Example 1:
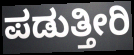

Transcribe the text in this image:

ಪಡುತ್ತೀರಿ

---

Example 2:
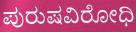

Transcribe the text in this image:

ಪುರುಷವಿರೋಧಿ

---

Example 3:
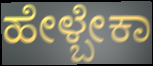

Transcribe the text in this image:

ಹೇಳ್ಬೇಕಾ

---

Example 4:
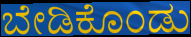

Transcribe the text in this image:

ಬೇಡಿಕೊಂಡು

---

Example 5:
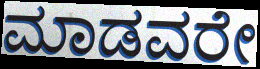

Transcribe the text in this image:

ಮಾಡವರೇ